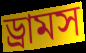
ড্রামস